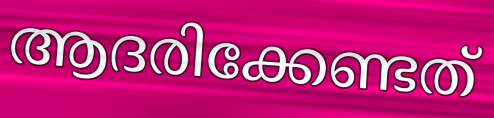
ആദരിക്കേണ്ടത്